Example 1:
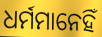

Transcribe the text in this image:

ଧର୍ମମାନେହିଁ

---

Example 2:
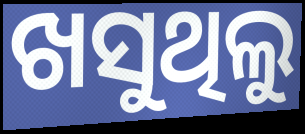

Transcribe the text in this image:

ଖସୁଥିଲୁ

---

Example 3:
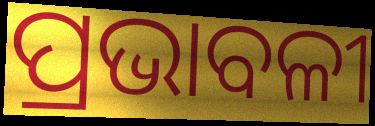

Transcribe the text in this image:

ପ୍ରଭାବଳୀ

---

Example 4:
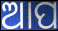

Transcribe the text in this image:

ଆପ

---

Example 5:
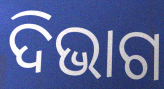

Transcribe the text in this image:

ଦିଭାଗ